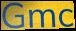
Gmc